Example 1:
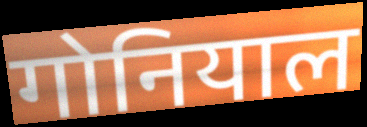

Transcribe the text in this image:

गोनियाल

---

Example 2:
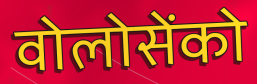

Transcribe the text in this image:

वोलोसेंको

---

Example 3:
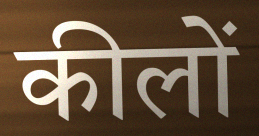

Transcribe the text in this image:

कीलों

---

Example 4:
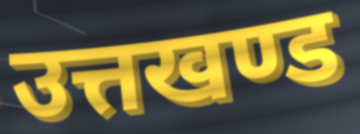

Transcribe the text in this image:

उत्तखण्ड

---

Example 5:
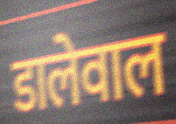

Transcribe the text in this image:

डालेवाल